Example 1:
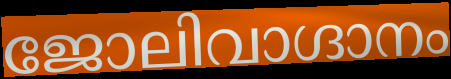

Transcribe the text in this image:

ജോലിവാഗ്ദാനം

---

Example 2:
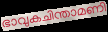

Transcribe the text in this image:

ഭാവുകചിന്താമണി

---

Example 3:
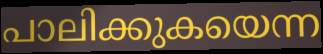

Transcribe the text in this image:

പാലിക്കുകയെന്ന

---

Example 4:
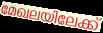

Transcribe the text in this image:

മേഖലയിലേക്ക്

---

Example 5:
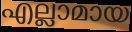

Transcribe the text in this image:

എല്ലാമായ